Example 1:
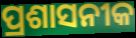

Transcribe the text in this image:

ପ୍ରଶାସନୀକ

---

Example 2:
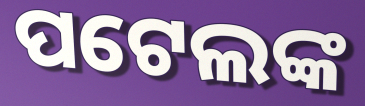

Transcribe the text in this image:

ପଟେଲଙ୍କ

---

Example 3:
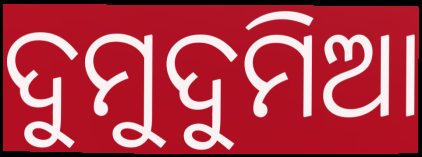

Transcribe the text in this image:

ଦୁମୁଦୁମିଆ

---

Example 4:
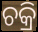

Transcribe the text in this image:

ଚକ୍ରି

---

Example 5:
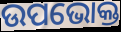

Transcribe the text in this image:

ଉପଭୋକ୍ତ